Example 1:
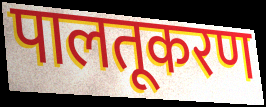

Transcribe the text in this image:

पालतूकरण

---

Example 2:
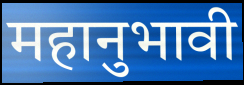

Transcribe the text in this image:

महानुभावी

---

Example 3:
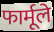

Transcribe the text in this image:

फार्मूले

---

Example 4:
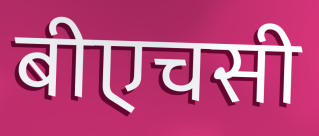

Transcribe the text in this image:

बीएचसी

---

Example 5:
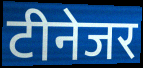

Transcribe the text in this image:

टीनेजर